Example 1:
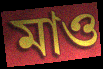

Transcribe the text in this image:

মাও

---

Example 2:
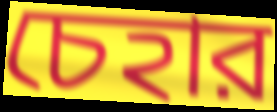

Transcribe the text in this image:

চেহার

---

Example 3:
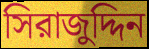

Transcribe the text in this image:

সিরাজুদ্দিন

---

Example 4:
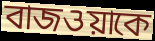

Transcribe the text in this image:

বাজওয়াকে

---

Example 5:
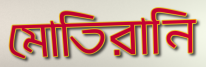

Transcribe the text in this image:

মোতিরানি